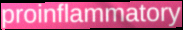
proinflammatory